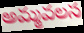
అమ్మవలస